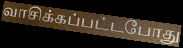
வாசிக்கப்பட்டபோது